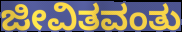
ಜೀವಿತವಂತು